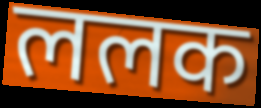
ललक